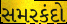
સમરકંદો